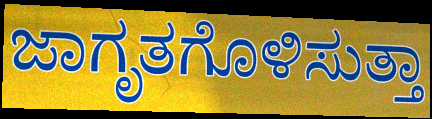
ಜಾಗೃತಗೊಳಿಸುತ್ತಾ